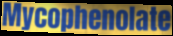
Mycophenolate